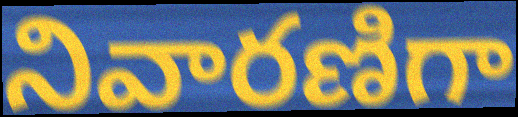
నివారణిగా